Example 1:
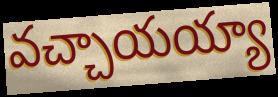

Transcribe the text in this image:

వచ్చాయయ్యా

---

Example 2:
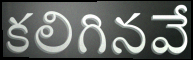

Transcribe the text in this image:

కలిగినవే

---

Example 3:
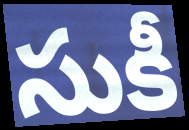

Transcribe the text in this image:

సుకీ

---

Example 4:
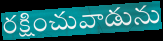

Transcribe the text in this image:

రక్షించువాడును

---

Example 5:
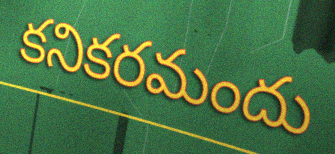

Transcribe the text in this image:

కనికరమందు